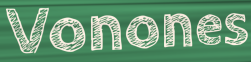
Vonones